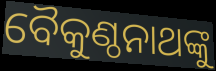
ବୈକୁଣ୍ଠନାଥଙ୍କୁ